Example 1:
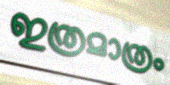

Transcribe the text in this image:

ഇത്രമാത്രം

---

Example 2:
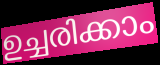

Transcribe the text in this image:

ഉച്ചരിക്കാം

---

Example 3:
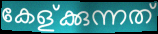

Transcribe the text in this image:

കേള്ക്കുന്നത്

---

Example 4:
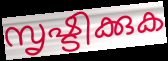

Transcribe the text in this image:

സൃഷ്ടിക്കുക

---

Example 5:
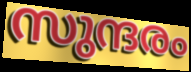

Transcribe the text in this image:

സുന്ദരം